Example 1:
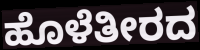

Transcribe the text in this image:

ಹೊಳೆತೀರದ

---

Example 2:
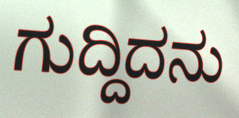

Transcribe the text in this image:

ಗುದ್ದಿದನು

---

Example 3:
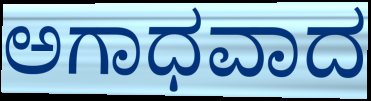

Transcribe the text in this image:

ಅಗಾಧವಾದ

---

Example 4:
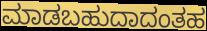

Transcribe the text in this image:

ಮಾಡಬಹುದಾದಂತಹ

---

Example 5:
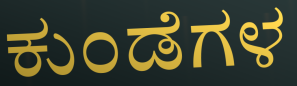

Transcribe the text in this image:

ಕುಂಡೆಗಳ